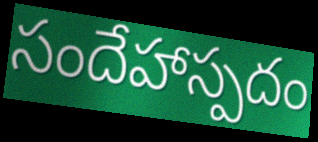
సందేహాస్పదం